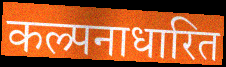
कल्पनाधारित